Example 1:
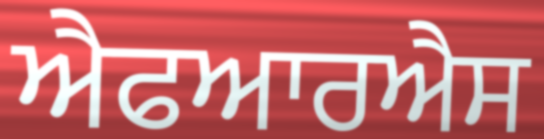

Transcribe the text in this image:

ਐਫਆਰਐਸ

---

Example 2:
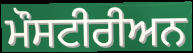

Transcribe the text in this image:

ਮੌਸਟੀਰੀਅਨ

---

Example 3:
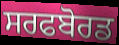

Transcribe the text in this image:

ਸਰਫਬੋਰਡ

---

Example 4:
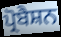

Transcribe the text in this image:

ਪ੍ਰੋਬੈਸ਼ਨ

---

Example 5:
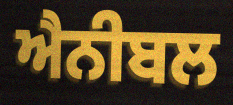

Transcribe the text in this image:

ਐਨੀਬਲ